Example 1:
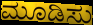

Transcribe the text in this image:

ಮೂಡಿಸು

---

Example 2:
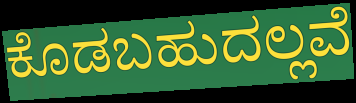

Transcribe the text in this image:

ಕೊಡಬಹುದಲ್ಲವೆ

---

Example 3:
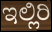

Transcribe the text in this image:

ಇಲ್ಲಿರಿ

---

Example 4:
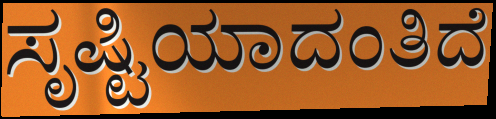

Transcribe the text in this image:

ಸೃಷ್ಟಿಯಾದಂತಿದೆ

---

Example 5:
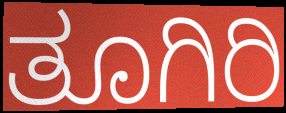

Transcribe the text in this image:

ತೂಗಿರಿ